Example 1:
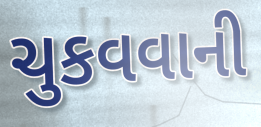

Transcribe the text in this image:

ચુકવવાની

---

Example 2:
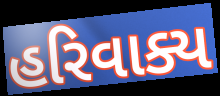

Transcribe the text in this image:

હરિવાક્ય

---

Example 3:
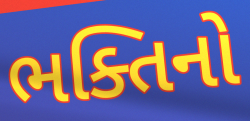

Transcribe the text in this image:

ભક્તિનો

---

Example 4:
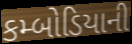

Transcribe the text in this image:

કમ્બોડિયાની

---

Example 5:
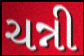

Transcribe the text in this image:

ચન્ની